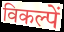
विकल्पें